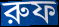
রুফ